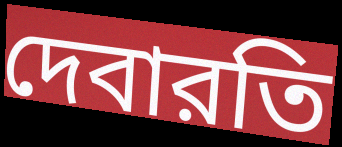
দেবারতি